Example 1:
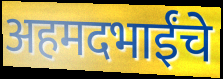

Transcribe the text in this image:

अहमदभाईंचे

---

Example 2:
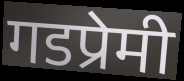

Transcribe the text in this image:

गडप्रेमी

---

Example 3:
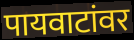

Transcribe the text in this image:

पायवाटांवर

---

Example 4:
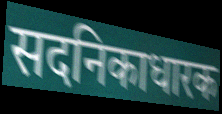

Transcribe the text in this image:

सदनिकाधारक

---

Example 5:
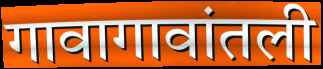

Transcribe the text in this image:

गावागावांतली